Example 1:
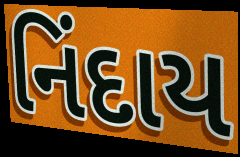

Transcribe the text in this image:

નિંદાય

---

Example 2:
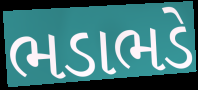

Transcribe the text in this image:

ભડાભડે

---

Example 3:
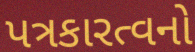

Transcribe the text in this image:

પત્રકારત્વનો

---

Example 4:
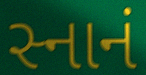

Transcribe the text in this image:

સ્નાનં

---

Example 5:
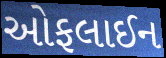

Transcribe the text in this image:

ઓફલાઈન